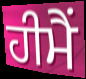
ਹੀਮੈਂ